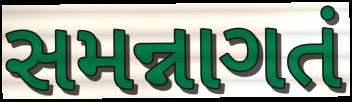
સમન્નાગતં